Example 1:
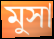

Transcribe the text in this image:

মুসা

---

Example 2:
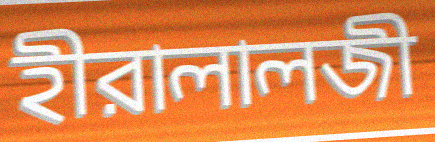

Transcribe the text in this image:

হীরালালজী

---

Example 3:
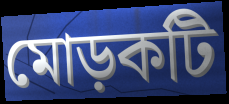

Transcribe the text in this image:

মোড়কটি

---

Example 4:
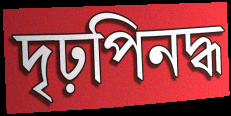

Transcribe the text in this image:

দৃঢ়পিনদ্ধ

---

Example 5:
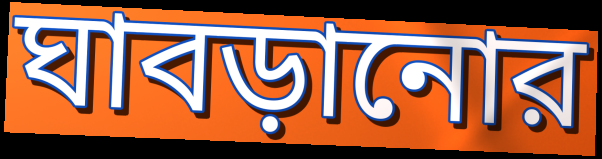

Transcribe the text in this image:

ঘাবড়ানোর